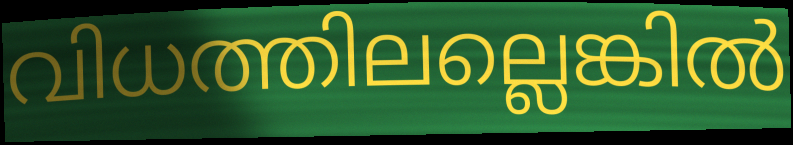
വിധത്തിലല്ലെങ്കിൽ